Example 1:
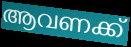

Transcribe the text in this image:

ആവണക്ക്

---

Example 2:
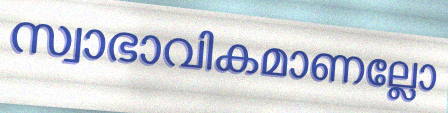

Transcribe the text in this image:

സ്വാഭാവികമാണല്ലോ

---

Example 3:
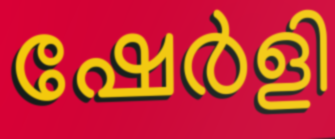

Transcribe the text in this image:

ഷേർളി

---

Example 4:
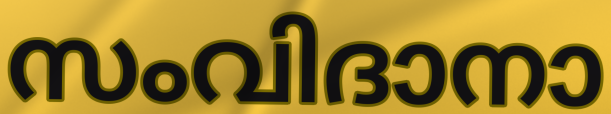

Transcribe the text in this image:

സംവിദാനാ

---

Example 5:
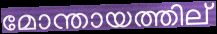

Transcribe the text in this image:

മോന്തായത്തില്